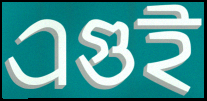
এগুই